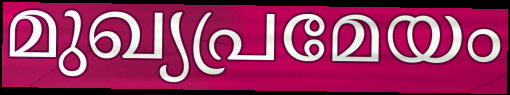
മുഖ്യപ്രമേയം